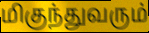
மிகுந்துவரும்